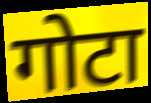
गोटा